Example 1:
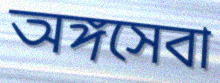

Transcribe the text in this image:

অঙ্গসেবা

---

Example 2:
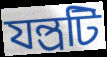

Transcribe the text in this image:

যন্ত্রটি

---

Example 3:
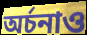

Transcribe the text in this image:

অর্চনাও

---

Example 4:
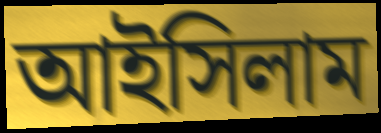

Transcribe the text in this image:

আইসিলাম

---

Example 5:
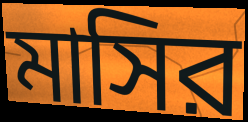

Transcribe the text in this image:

মাসির